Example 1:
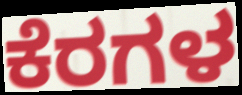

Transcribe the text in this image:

ಕೆರಗಳ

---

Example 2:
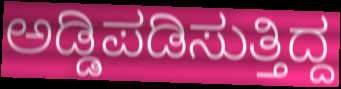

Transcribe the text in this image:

ಅಡ್ಡಿಪಡಿಸುತ್ತಿದ್ದ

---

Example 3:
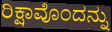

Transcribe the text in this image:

ರಿಕ್ಷಾವೊಂದನ್ನು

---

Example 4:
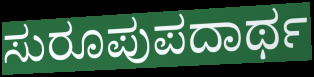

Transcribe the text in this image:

ಸುರೂಪುಪದಾರ್ಥ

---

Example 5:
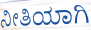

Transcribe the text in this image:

ನೀತಿಯಾಗಿ